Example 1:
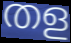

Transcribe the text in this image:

തള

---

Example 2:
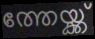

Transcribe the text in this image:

ത്തേയ്ക്ക്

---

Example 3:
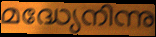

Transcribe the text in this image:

മദ്ധ്യേനിന്നു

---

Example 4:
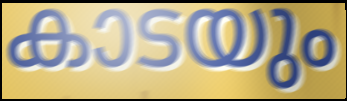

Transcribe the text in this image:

കാടയും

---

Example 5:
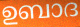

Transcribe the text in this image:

ഉബാദ